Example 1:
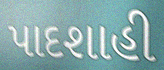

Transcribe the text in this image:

પાદશાહી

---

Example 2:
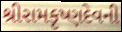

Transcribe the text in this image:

શ્રીરામકૃષ્ણદેવની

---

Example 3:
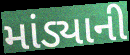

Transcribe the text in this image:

માંડ્યાની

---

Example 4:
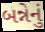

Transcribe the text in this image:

બન્નેનું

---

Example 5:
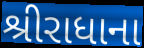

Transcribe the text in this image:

શ્રીરાધાના